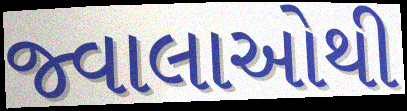
જ્વાલાઓથી